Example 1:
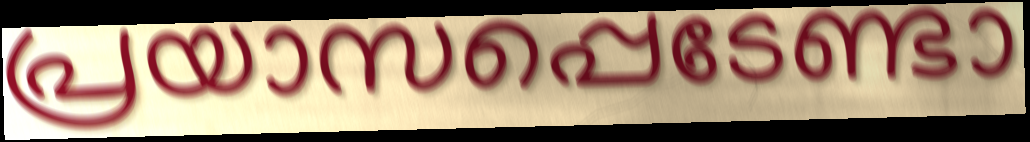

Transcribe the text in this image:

പ്രയാസപ്പെടേണ്ടാ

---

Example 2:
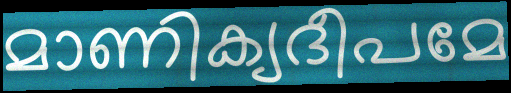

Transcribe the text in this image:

മാണിക്യദീപമേ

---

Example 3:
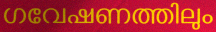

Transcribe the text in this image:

ഗവേഷണത്തിലും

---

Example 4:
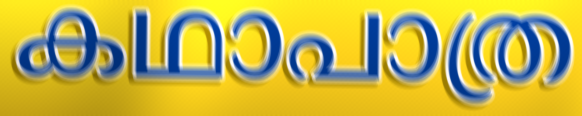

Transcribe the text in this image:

കഥാപാത്ര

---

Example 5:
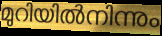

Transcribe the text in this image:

മുറിയിൽനിന്നും